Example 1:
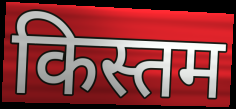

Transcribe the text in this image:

किस्तम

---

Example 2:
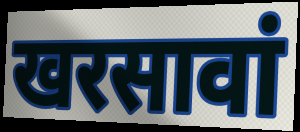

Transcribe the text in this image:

खरसावां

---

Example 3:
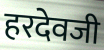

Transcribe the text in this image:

हरदेवजी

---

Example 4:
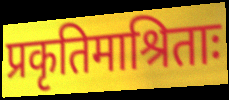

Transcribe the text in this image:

प्रकृतिमाश्रिताः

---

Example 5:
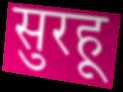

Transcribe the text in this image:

सुरहू